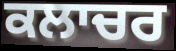
ਕਲਾਚਰ